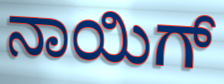
ನಾಯಿಗ್